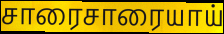
சாரைசாரையாய்